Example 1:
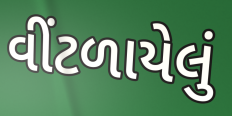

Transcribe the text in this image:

વીંટળાયેલું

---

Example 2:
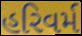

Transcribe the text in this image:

હરિવર્મ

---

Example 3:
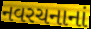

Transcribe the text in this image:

નવરચનાનાં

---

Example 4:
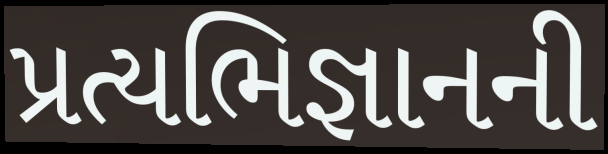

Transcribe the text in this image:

પ્રત્યભિજ્ઞાનની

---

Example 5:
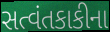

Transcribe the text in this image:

સત્વંતકાકીના